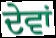
ਦੇਵਾਂ